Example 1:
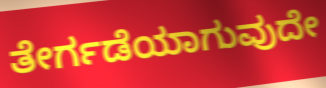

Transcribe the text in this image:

ತೇರ್ಗಡೆಯಾಗುವುದೇ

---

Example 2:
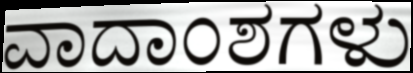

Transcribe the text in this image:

ವಾದಾಂಶಗಳು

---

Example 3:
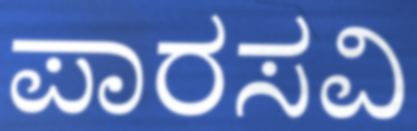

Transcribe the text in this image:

ಪಾರಸವಿ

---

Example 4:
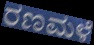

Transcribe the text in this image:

ರಣಮಳೆ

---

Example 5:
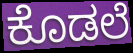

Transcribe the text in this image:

ಕೊಡಲೆ